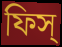
ফিস্